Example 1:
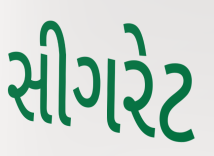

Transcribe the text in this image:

સીગરેટ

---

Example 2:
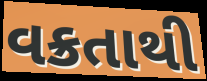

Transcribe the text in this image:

વક્રતાથી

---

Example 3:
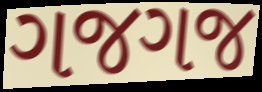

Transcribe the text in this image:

ગજગજ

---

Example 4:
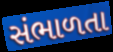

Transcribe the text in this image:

સંભાળતા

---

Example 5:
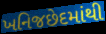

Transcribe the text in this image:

ખનિજછેદમાંથી